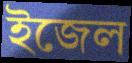
ইজেল